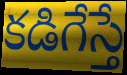
కడిగేస్తే